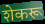
शेकरू